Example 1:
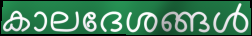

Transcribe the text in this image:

കാലദേശങ്ങൾ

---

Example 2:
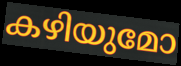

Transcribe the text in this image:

കഴിയുമോ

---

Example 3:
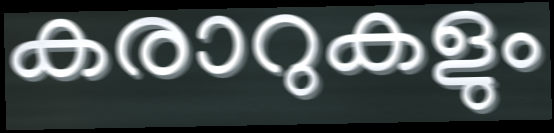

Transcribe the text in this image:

കരാറുകളും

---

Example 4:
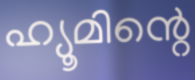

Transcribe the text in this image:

ഹ്യൂമിന്റെ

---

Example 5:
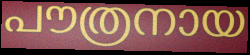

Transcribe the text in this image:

പൗത്രനായ